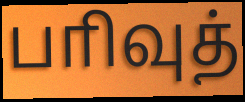
பரிவுத்